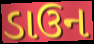
ડાઉન